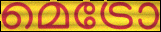
മെട്രോ